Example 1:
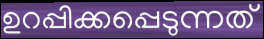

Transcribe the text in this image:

ഉറപ്പിക്കപ്പെടുന്നത്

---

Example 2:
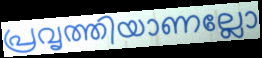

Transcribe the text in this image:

പ്രവൃത്തിയാണല്ലോ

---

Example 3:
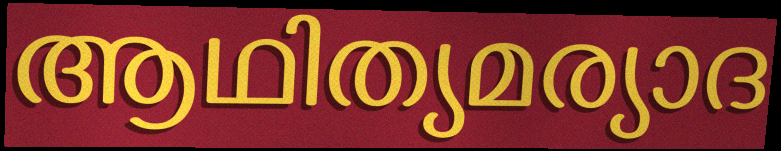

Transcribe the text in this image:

ആഥിത്യമര്യാദ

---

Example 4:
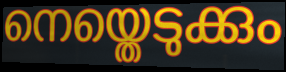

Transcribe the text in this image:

നെയ്തെടുക്കും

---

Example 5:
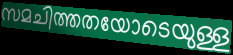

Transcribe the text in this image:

സമചിത്തതയോടെയുള്ള